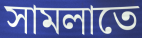
সামলাতে